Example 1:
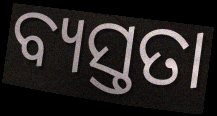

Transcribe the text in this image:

ବ୍ୟସ୍ତତା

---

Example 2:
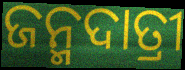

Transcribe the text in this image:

ଜନ୍ମଦାତ୍ରୀ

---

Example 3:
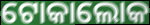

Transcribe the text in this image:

ଟୋକାଲୋକ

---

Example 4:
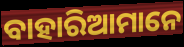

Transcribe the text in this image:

ବାହାରିଆମାନେ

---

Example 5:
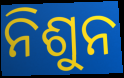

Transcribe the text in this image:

ନିଶୁନ